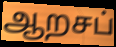
ஆறசப்